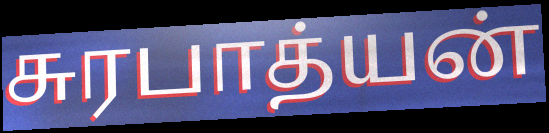
சுரபாத்யன்